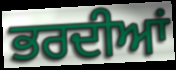
ਭਰਦੀਆਂ